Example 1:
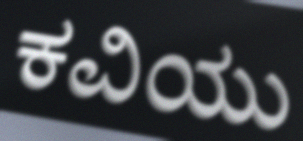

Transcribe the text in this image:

ಕವಿಯು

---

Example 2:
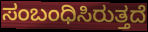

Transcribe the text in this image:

ಸಂಬಂಧಿಸಿರುತ್ತದೆ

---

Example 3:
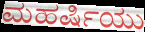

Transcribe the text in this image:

ಮಹರ್ಷಿಯು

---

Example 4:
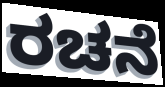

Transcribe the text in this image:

ರಚನೆ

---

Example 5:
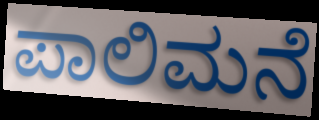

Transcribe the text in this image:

ಪಾಲಿಮನೆ